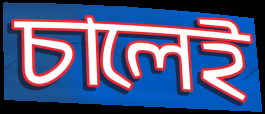
চালেই